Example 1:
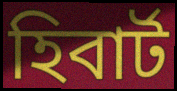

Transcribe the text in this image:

হিবার্ট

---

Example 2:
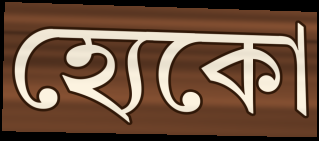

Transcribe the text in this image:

হ্যেকো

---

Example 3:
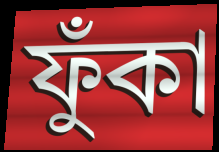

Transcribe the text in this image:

ফুঁকা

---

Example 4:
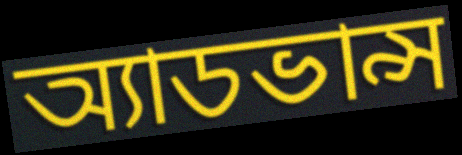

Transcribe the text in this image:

অ্যাডভান্স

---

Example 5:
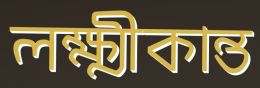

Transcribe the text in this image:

লক্ষ্মীকান্ত